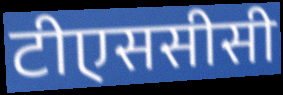
टीएससीसी